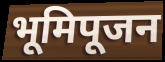
भूमिपूजन